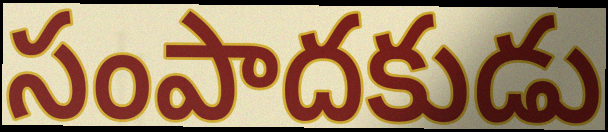
సంపాదకుడు